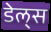
डेल्स